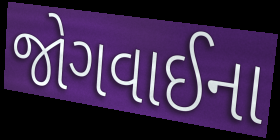
જોગવાઈના